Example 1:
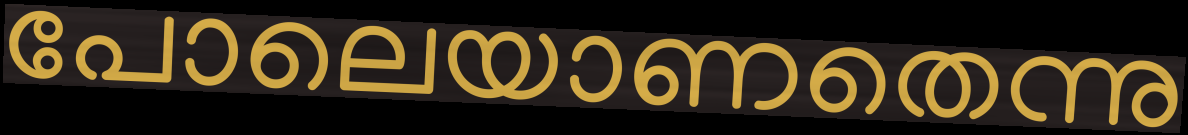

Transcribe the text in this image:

പോലെയാണതെന്നു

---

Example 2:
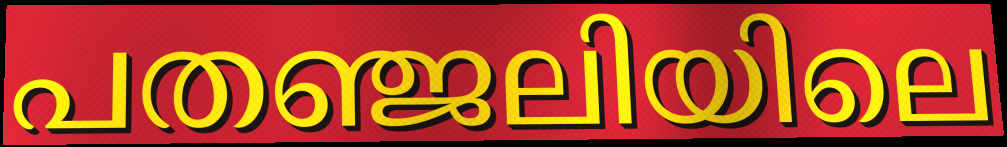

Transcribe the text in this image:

പതഞ്ജലിയിലെ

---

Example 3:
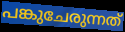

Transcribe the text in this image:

പങ്കുചേരുന്നത്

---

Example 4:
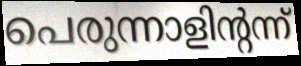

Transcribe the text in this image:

പെരുന്നാളിന്റന്ന്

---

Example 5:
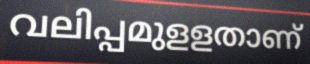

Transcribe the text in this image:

വലിപ്പമുളളതാണ്